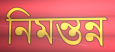
নিমন্তন্ন